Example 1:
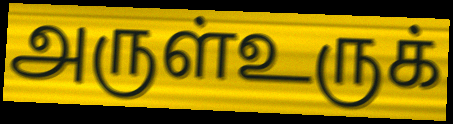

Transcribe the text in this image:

அருள்உருக்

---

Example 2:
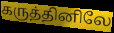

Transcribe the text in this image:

கருத்தினிலே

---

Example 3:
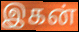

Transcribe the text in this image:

இகன்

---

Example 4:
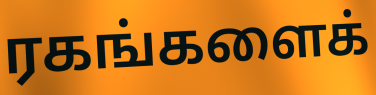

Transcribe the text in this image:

ரகங்களைக்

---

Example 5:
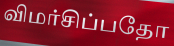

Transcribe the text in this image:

விமர்சிப்பதோ